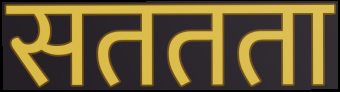
सततता